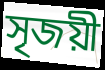
সৃজয়ী